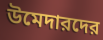
উমেদারদের